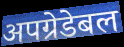
अपग्रेडेबल